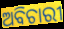
ଅବିଚାରୀ